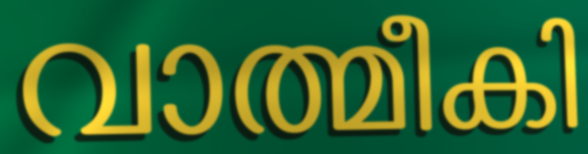
വാത്മീകി